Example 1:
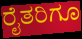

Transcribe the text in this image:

ರೈತರಿಗೂ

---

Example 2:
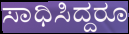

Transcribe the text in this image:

ಸಾಧಿಸಿದ್ದರೂ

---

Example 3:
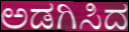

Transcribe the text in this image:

ಅಡಗಿಸಿದ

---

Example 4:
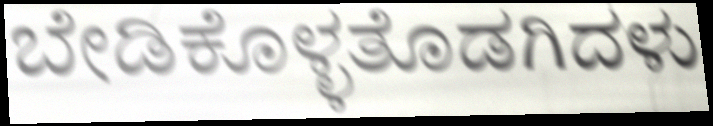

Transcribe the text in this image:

ಬೇಡಿಕೊಳ್ಳತೊಡಗಿದಳು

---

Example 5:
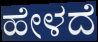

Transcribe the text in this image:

ಹೇಳದೆ